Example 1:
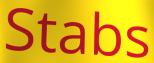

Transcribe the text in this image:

Stabs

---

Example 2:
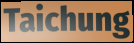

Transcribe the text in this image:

Taichung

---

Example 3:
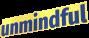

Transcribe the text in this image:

unmindful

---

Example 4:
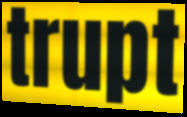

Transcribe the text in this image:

trupt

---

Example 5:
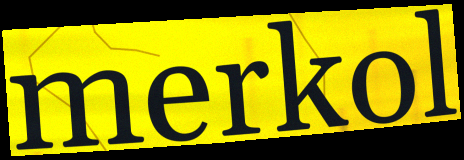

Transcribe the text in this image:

merkol